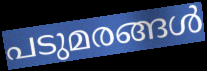
പടുമരങ്ങൾ